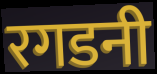
रगडनी